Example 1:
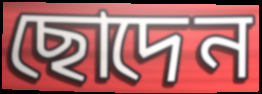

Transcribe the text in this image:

ছোদেন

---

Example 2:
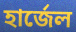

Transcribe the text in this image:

হার্জেল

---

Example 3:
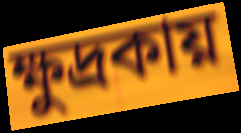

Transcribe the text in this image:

ক্ষুদ্রকায়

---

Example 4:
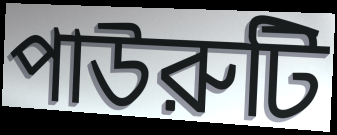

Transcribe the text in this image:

পাউরুটি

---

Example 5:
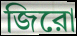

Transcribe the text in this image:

জিরো